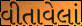
વીતાવેલાં